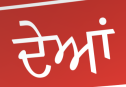
ਦੇਆਂ